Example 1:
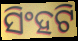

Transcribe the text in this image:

ସିଂହଟି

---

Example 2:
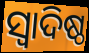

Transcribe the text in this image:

ସ୍ୱାଦିଷ୍ଠ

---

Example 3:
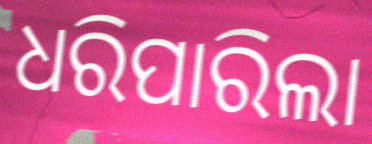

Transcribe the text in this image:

ଧରିପାରିଲା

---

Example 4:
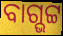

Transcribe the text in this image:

ବାଗ୍ଭଟ୍ଟ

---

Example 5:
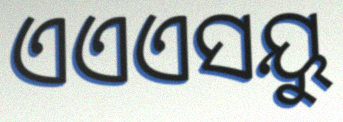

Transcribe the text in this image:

ଏଏଏସୟୁ